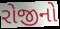
રોજીનો